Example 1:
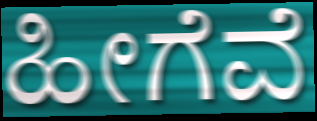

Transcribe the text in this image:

ಹೀಗೆವೆ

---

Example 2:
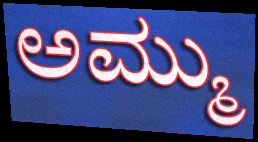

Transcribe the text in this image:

ಅಮ್ಮು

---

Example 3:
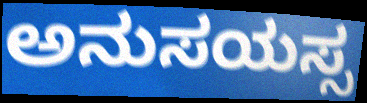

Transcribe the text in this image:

ಅನುಸಯಸ್ಸ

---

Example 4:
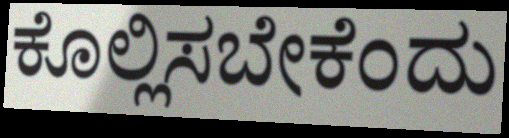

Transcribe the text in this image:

ಕೊಲ್ಲಿಸಬೇಕೆಂದು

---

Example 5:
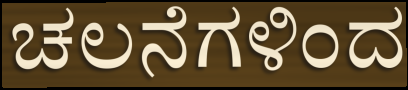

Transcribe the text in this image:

ಚಲನೆಗಳಿಂದ